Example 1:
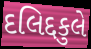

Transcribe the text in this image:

દલિદ્દકુલે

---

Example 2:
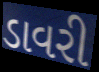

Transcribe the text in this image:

ડાવરી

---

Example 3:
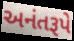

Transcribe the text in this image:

અનંતરૂપે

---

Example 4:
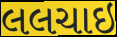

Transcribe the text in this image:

લલચાઇ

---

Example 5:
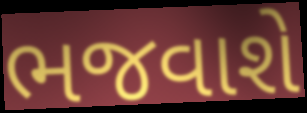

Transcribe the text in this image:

ભજવાશે